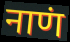
नाणं